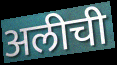
अलीची